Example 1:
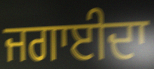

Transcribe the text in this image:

ਜਗਾਈਦਾ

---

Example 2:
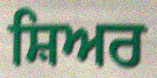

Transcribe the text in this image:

ਸ਼ਿਅਰ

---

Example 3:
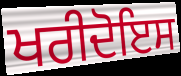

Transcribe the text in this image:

ਖਰੀਦੋਇਸ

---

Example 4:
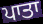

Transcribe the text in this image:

ਪਾਤਾ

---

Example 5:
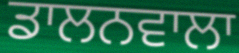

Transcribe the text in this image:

ਡਾਲਨਵਾਲਾ